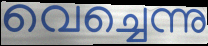
വെച്ചെന്നു